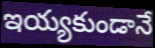
ఇయ్యకుండానే